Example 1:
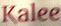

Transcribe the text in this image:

Kalee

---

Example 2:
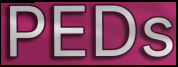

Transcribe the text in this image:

PEDs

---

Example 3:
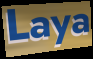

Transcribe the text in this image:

Laya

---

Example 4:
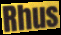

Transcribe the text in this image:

Rhus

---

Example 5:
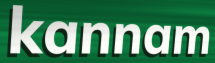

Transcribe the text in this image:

kannam